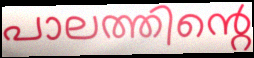
പാലത്തിന്റെ